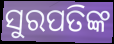
ସୁରପତିଙ୍କ